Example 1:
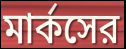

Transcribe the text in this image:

মার্কসের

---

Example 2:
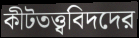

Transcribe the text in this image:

কীটতত্ত্ববিদদের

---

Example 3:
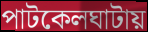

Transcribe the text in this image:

পাটকেলঘাটায়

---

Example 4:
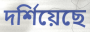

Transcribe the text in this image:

দর্শিয়েছে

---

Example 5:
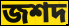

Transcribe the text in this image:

জশদ